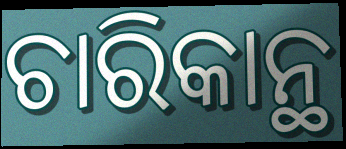
ଚାରିକାନ୍ଥ